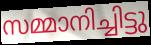
സമ്മാനിച്ചിട്ടു